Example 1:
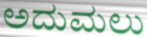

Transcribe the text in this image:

ಅದುಮಲು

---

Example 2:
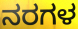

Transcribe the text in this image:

ನರಗಳ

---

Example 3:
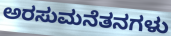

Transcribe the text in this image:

ಅರಸುಮನೆತನಗಳು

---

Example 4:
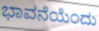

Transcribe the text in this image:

ಭಾವನೆಯೆಂದು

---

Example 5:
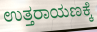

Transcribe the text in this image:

ಉತ್ತರಾಯಣಕ್ಕೆ